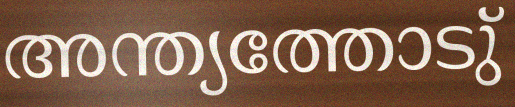
അന്ത്യത്തോടു്